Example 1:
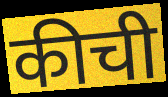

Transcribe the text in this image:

कीची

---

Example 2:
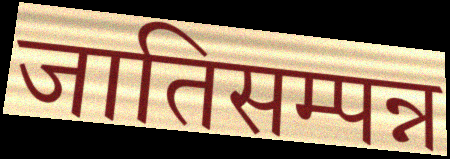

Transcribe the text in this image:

जातिसम्पन्न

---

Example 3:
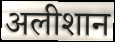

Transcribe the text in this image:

अलीशान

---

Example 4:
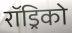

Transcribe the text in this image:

रॉड्रिको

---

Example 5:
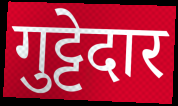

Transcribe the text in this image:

गुट्टेदार